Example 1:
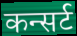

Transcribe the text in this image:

कन्सर्ट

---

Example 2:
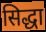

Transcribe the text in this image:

सिद्धा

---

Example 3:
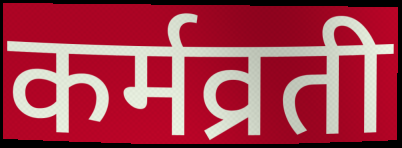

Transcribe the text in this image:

कर्मव्रती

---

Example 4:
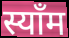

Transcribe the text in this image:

स्याँम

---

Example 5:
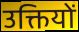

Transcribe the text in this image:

उक्तियों